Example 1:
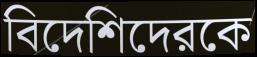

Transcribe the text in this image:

বিদেশিদেরকে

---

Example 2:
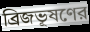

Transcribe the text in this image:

ব্রিজভূষণের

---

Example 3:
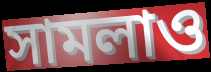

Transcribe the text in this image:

সামলাও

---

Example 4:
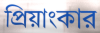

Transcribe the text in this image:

প্রিয়াংকার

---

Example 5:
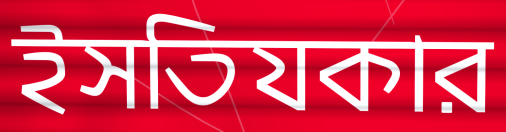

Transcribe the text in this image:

ইসতিযকার